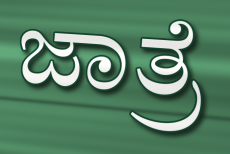
ಜಾತ್ರೆ